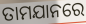
ତାମଯାନରେ